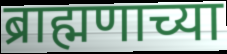
ब्राह्मणाच्या